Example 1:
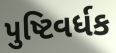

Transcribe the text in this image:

પુષ્ટિવર્ધક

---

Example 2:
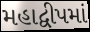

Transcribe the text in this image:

મહાદ્વીપમાં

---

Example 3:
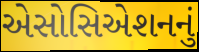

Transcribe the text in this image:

એસોસિએશનનું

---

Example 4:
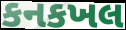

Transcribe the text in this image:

કનકખલ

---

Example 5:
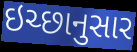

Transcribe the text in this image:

ઇચ્છાનુસાર